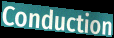
Conduction